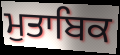
ਮੁਤਾਬਿਕ